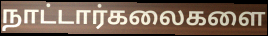
நாட்டார்கலைகளை